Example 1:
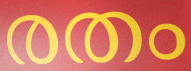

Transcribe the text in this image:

രതം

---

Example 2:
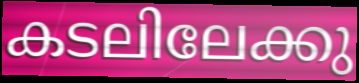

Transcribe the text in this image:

കടലിലേക്കു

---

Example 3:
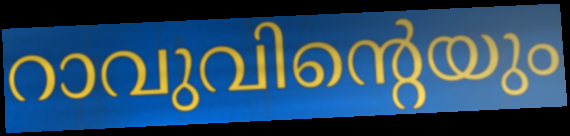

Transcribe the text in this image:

റാവുവിന്റെയും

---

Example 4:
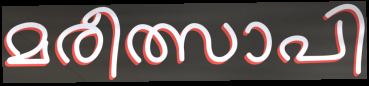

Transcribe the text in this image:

മരീത്സാപി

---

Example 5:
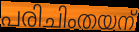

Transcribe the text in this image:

പരിചിംതയന്